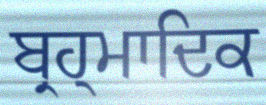
ਬ੍ਰਹ੍ਮਾਦਿਕ